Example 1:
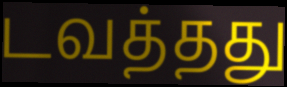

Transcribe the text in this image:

டவத்தது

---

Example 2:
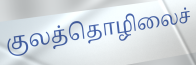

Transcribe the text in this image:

குலத்தொழிலைச்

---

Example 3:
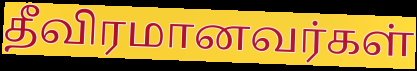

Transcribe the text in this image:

தீவிரமானவர்கள்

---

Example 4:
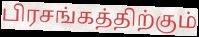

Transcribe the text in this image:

பிரசங்கத்திற்கும்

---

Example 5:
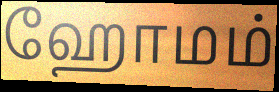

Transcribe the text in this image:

ஹோமம்